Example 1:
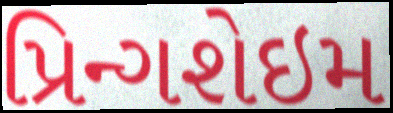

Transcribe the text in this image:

પ્રિન્ગશેઇમ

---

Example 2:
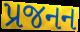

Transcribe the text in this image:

પ્રજનન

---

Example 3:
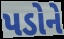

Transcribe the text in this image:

પડોને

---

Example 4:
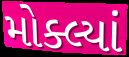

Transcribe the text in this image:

મોક્લ્યાં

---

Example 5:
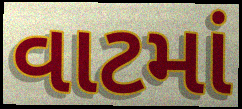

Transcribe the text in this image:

વાટમાં